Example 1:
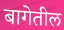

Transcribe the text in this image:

बागेतील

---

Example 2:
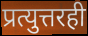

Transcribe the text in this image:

प्रत्युत्तरही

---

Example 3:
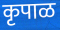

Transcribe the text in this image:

कृपाळ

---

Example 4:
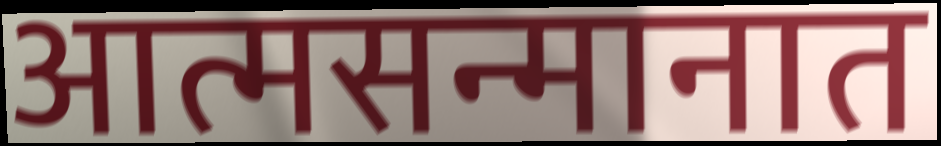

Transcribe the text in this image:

आत्मसन्मानात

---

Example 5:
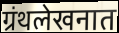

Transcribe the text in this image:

ग्रंथलेखनात